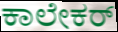
ಕಾಲೇಕರ್